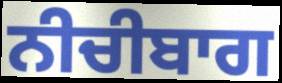
ਨੀਚੀਬਾਗ